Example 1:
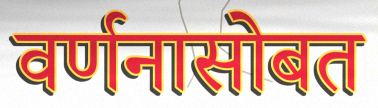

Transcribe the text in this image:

वर्णनासोबत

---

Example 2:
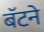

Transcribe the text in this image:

बॅटने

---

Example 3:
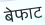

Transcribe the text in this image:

बेफाट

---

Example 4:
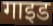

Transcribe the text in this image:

गाइड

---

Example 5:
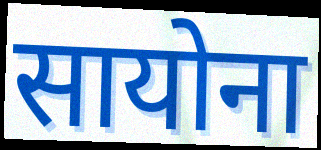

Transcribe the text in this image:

सायोना